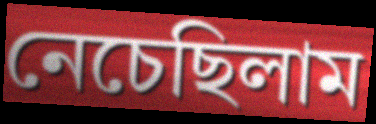
নেচেছিলাম